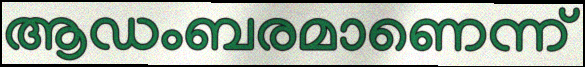
ആഡംബരമാണെന്ന്